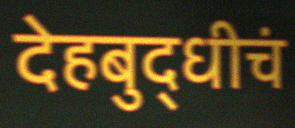
देहबुद्धीचं